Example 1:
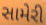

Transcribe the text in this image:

સામેરી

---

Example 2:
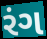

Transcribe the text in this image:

રંગ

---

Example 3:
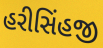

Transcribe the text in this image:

હરીસિંહજી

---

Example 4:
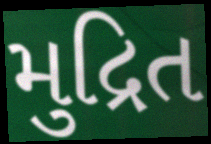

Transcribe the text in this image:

મુદ્રિત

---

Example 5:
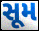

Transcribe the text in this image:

સૂમ